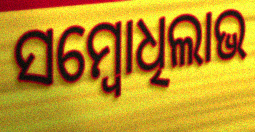
ସମ୍ବୋଧିଲାଭ